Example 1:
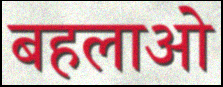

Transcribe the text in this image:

बहलाओ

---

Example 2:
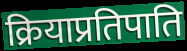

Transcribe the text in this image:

क्रियाप्रतिपाति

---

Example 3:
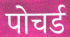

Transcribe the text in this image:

पोचर्ड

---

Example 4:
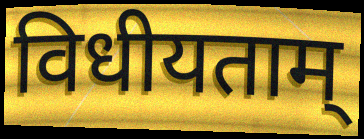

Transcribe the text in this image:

विधीयताम्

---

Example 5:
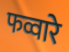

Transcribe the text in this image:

फव्‍वारे